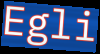
Egli